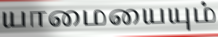
யாமையையும்